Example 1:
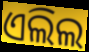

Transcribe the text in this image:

ଏଲିଲ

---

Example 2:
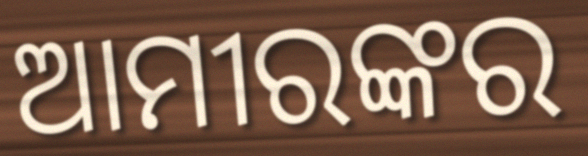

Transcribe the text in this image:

ଆମୀରଙ୍କର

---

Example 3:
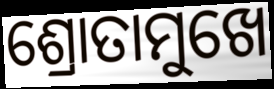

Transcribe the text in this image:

ଶ୍ରୋତାମୁଖେ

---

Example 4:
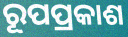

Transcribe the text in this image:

ରୂପପ୍ରକାଶ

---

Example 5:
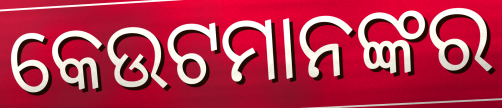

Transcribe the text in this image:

କେଉଟମାନଙ୍କର